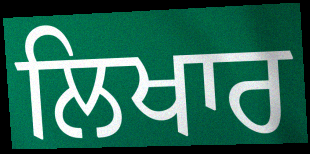
ਲਿਖਾਰ